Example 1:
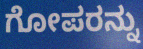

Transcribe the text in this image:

ಗೋಪರನ್ನು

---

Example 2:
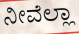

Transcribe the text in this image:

ನೀವೆಲ್ಲಾ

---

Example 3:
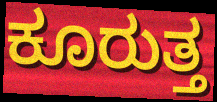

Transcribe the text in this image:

ಕೂರುತ್ತ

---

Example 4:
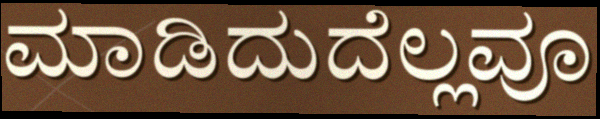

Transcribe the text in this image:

ಮಾಡಿದುದೆಲ್ಲವೂ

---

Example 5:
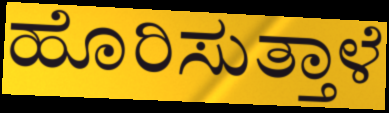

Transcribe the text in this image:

ಹೊರಿಸುತ್ತಾಳೆ